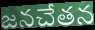
జనచేతన